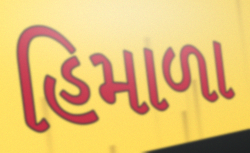
હિમાળા